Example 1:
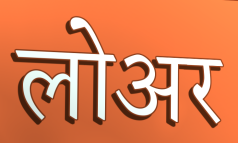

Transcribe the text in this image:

लोअर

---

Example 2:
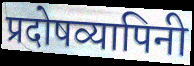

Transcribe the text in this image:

प्रदोषव्यापिनी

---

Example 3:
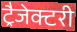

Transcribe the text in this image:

ट्रैजेक्टरी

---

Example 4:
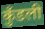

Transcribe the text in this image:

कुँडली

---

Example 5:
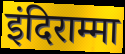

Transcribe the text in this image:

इंदिराम्मा